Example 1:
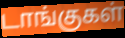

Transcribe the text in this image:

டாங்குகள்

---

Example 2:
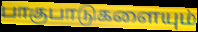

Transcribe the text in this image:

பாகுபாடுகளையும்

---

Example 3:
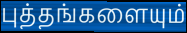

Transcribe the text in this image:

புத்தங்களையும்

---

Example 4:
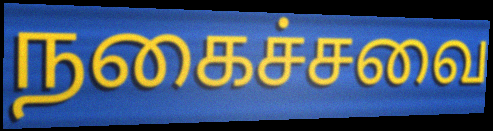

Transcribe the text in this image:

நகைச்சவை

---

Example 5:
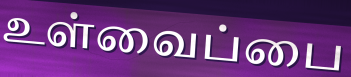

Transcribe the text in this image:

உள்வைப்பை